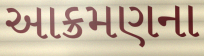
આક્રમણના